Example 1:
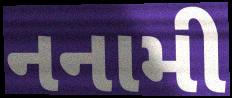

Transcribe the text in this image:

નનામી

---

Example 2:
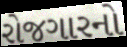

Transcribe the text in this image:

રોજગારનો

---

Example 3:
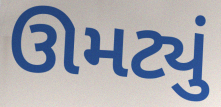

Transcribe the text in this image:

ઊમટ્યું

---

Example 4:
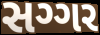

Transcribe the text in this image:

સગ્ગર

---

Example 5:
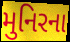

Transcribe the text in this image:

મુનિરના